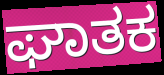
ಘಾತಕ